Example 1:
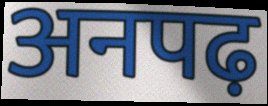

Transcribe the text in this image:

अनपढ़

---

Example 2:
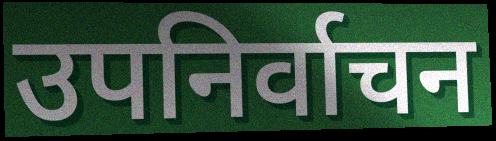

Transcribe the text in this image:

उपनिर्वाचन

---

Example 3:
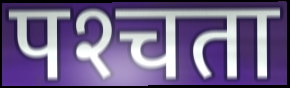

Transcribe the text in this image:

पश्चता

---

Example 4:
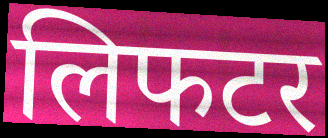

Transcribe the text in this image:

लिफटर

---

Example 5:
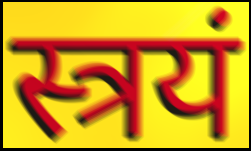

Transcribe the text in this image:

स्त्रयं